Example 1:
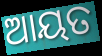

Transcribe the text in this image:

ଆୟତ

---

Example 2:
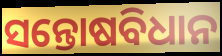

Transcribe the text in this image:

ସନ୍ତୋଷବିଧାନ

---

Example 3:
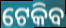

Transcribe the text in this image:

ଟେକିବ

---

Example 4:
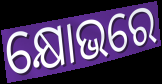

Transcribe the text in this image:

କ୍ଷୋଭରେ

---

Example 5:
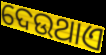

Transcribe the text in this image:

ଦେଉଥାଏ